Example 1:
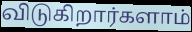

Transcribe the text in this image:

விடுகிறார்களாம்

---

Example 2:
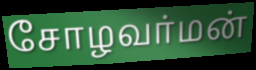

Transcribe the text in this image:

சோழவர்மன்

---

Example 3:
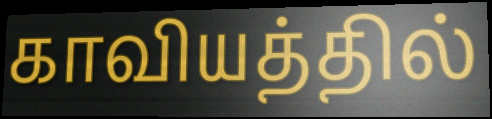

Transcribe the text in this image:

காவியத்தில்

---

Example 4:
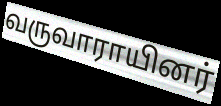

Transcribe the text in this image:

வருவாராயினர்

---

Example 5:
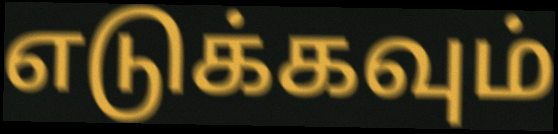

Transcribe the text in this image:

எடுக்கவும்